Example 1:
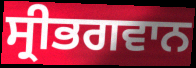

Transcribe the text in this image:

ਸ੍ਰੀਭਗਵਾਨ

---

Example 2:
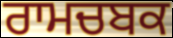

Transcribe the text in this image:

ਰਾਮਚਬਕ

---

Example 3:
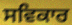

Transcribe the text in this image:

ਸਵਿਕਾਰ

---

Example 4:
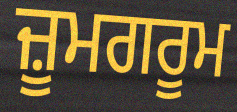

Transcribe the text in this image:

ਜ਼ੂਮਗਰੂਮ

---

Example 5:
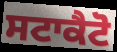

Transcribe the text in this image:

ਸਟਾਕੈਟੋ